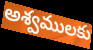
అశ్వములకు